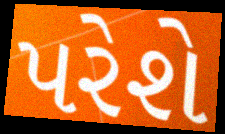
પરેશે